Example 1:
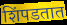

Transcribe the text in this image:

शिंपडतात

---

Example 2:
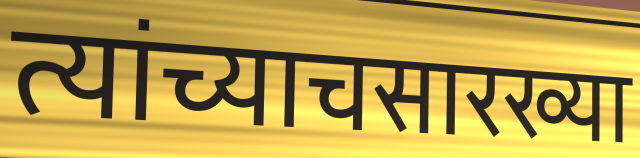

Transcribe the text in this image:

त्यांच्याचसारख्या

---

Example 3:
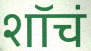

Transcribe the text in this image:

शॉचं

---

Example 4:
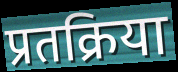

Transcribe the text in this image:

प्रतक्रिया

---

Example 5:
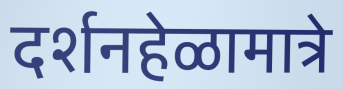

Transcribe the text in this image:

दर्शनहेळामात्रे